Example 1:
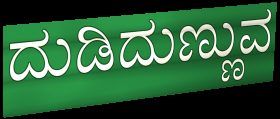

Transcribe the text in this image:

ದುಡಿದುಣ್ಣುವ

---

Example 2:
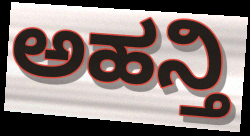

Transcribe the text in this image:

ಅಹನ್ತಿ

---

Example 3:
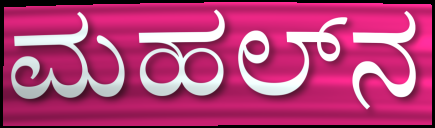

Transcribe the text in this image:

ಮಹಲ್‌ನ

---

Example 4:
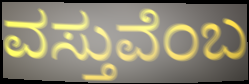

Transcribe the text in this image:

ವಸ್ತುವೆಂಬ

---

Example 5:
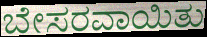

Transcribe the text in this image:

ಬೇಸರವಾಯಿತು